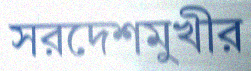
সরদেশমুখীর